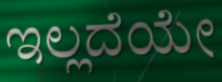
ಇಲ್ಲದೆಯೇ